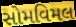
સોમવિમલ